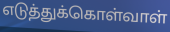
எடுத்துக்கொள்வாள்